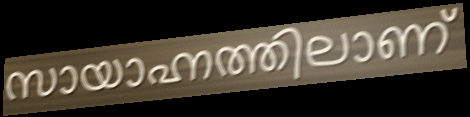
സായാഹ്നത്തിലാണ്